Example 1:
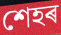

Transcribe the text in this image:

শেহৰ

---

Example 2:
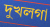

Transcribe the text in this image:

দুখলগা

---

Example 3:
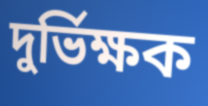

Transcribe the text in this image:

দুৰ্ভিক্ষক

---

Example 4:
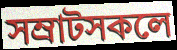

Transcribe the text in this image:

সম্ৰাটসকলে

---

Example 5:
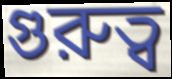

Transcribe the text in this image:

গুৰুত্ব